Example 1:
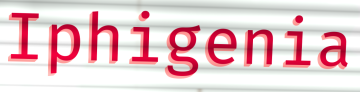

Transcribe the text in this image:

Iphigenia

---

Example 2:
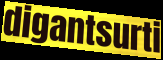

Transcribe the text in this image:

digantsurti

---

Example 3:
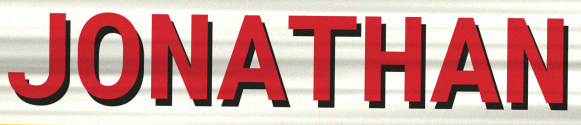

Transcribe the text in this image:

JONATHAN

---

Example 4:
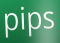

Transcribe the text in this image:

pips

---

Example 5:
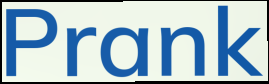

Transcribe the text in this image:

Prank